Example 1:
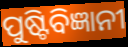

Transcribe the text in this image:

ପୁଷ୍ଟିବିଜ୍ଞାନୀ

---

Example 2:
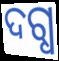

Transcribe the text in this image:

ଦଗ୍ଧ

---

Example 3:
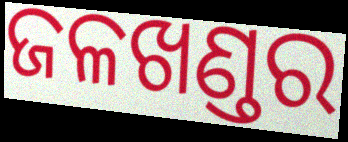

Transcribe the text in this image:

ଜଳଖଣ୍ଡର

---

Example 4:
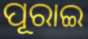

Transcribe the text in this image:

ପୂରାଇ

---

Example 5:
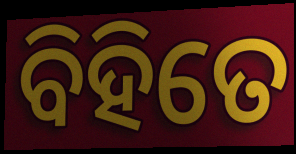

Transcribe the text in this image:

ବିହିତେ